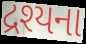
દ્રશ્યના